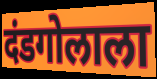
दंडगोलाला